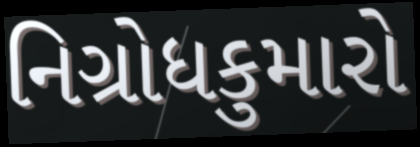
નિગ્રોધકુમારો